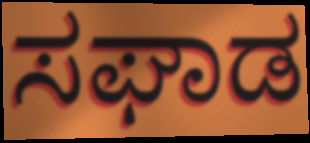
ಸಘಾಡ